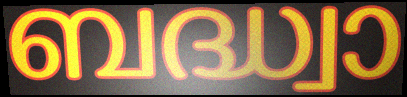
ബദ്ധ്വാ